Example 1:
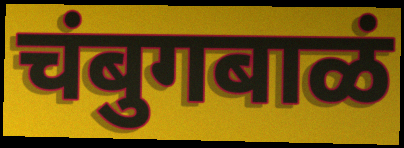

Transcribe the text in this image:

चंबुगबाळं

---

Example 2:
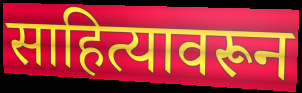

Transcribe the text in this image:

साहित्यावरून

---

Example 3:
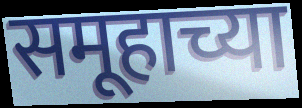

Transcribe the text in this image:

समूहाच्या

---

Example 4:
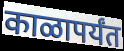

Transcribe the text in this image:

काळापर्यंत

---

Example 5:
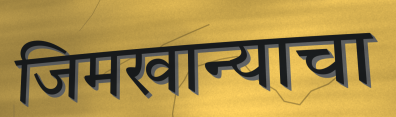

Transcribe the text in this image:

जिमखान्याचा